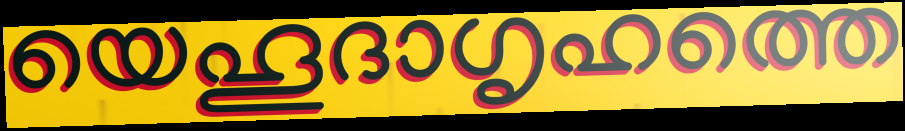
യെഹൂദാഗൃഹത്തെ